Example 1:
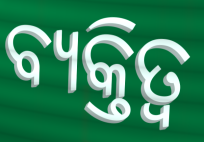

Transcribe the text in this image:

ବ୍ୟକ୍ତିତ୍ଵ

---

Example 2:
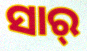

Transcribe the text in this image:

ସାର୍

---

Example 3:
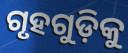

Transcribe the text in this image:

ଗୃହଗୁଡ଼ିକୁ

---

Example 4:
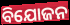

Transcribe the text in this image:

ବିଯୋଜନ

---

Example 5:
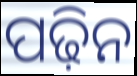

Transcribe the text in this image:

ପଢ଼ିନ